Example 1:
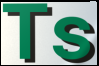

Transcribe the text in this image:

Ts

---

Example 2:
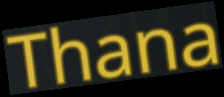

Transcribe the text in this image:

Thana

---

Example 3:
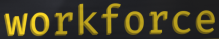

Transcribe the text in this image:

workforce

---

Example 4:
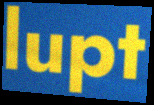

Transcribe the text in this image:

lupt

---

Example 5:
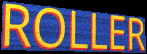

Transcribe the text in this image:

ROLLER